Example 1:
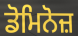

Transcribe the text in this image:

ਡੋਮਿਨੋਜ਼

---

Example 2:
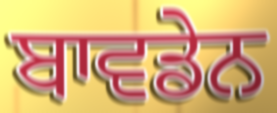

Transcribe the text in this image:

ਬਾਵਡੇਨ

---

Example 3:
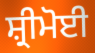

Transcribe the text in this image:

ਸ਼੍ਰੀਮੋਈ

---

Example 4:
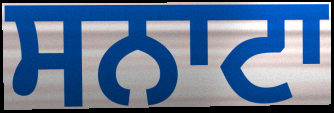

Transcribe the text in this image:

ਸਨਾਟਾ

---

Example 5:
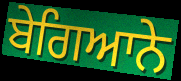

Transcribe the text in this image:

ਬੇਗਿਆਨੇ